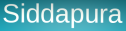
Siddapura